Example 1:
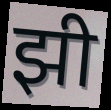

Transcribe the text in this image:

झी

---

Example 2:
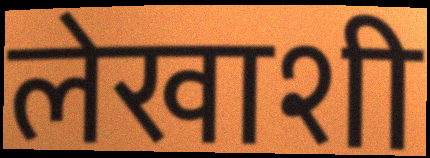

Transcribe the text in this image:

लेखाशी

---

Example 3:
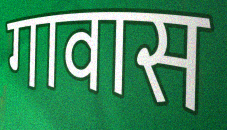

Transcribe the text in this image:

गावास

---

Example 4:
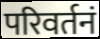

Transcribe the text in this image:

परिवर्तनं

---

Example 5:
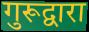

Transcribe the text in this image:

गुरूद्वारा